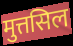
मुत्तसिल